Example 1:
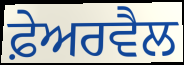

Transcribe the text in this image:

ਫ਼ੇਅਰਵੈਲ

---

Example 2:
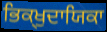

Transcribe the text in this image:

ਭਿਕ੍ਖੁਦਾਯਿਕਾ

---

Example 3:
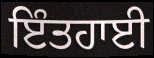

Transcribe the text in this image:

ਇੰਤਹਾਈ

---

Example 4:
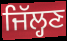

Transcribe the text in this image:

ਜਿੱਲ੍ਹਣ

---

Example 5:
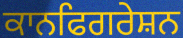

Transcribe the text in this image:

ਕਾਨਫਿਗਰੇਸ਼ਨ